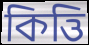
কিত্তি